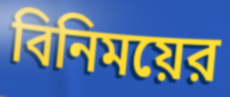
বিনিময়ের